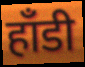
हाँडी